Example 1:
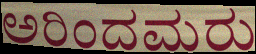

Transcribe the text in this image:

ಅರಿಂದಮರು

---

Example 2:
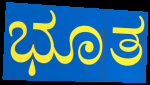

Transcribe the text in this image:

ಭೂತ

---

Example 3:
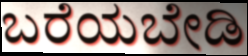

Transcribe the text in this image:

ಬರೆಯಬೇಡಿ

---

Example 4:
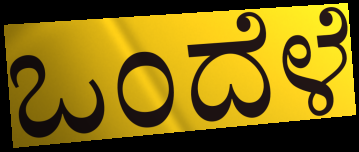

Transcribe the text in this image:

ಒಂದೆಳೆ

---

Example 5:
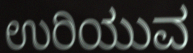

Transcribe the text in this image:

ಉರಿಯುವ